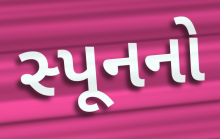
સ્પૂનનો